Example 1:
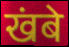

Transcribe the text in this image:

खंबे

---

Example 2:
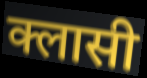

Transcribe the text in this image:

क्लासी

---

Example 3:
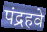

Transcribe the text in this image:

पंद्रहवे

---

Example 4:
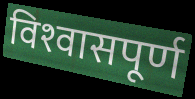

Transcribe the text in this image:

विश्वासपूर्ण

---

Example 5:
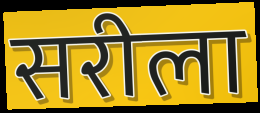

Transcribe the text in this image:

सरीला